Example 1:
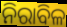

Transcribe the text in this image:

ନିରାବିଳ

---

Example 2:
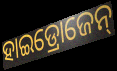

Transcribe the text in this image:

ହାଇଡ୍ରୋଜେନ୍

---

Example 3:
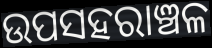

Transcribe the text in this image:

ଉପସହରାଞ୍ଚଳ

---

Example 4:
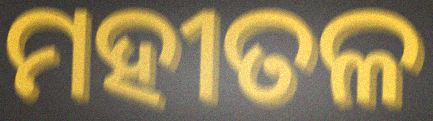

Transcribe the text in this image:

ମହୀତଳ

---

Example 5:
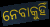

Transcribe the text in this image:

ନେବାକୁହିଁ